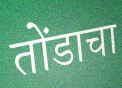
तोंडाचा